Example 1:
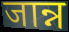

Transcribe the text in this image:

जान्न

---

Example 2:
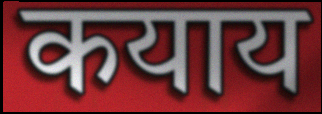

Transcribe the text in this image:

कयाय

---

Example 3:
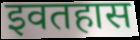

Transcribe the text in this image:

इवतहास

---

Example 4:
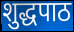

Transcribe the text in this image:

शुद्धपाठ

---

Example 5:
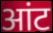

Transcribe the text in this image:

आंट